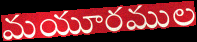
మయూరముల